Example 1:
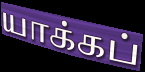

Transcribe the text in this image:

யாக்கப்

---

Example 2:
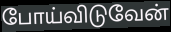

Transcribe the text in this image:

போய்விடுவேன்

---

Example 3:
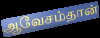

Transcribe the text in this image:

ஆவேசம்தான்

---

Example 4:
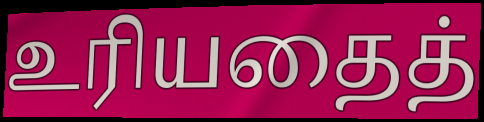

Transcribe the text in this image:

உரியதைத்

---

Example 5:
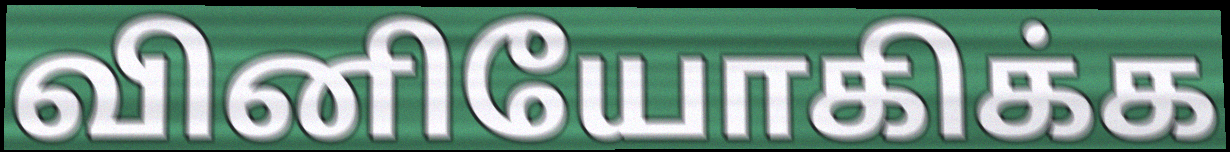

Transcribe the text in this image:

வினியோகிக்க